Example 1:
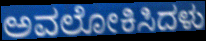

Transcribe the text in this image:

ಅವಲೋಕಿಸಿದಳು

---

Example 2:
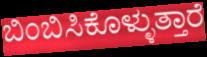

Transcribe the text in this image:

ಬಿಂಬಿಸಿಕೊಳ್ಳುತ್ತಾರೆ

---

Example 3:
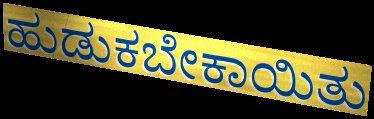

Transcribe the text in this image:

ಹುಡುಕಬೇಕಾಯಿತು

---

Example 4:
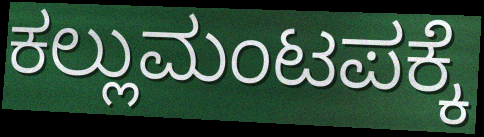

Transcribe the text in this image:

ಕಲ್ಲುಮಂಟಪಕ್ಕೆ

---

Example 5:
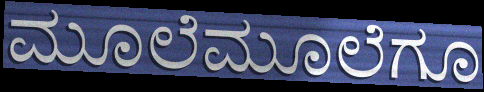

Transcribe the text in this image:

ಮೂಲೆಮೂಲೆಗೂ